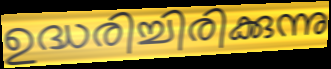
ഉദ്ധരിച്ചിരിക്കുന്നു